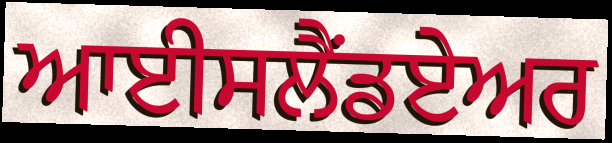
ਆਈਸਲੈਂਡਏਅਰ